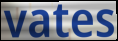
vates